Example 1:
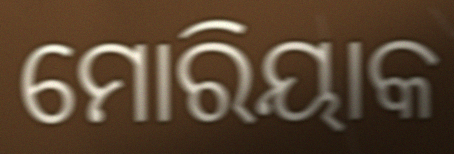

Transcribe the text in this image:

ମୋରିୟାକ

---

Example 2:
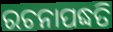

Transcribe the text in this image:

ରଚନାପଦ୍ଧତି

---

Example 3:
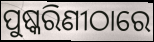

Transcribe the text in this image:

ପୁଷ୍କରିଣୀଠାରେ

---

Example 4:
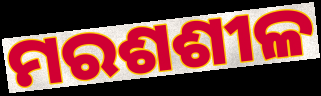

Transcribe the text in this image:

ମରଶଶୀଳ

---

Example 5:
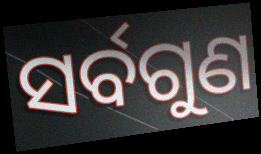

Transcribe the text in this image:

ସର୍ବଗୁଣ